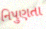
નિપુણતા